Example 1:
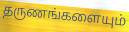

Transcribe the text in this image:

தருணங்களையும்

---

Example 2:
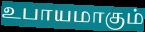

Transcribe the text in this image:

உபாயமாகும்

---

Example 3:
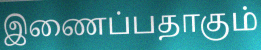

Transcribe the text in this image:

இணைப்பதாகும்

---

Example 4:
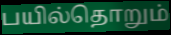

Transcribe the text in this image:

பயில்தொறும்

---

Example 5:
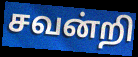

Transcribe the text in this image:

சவன்றி